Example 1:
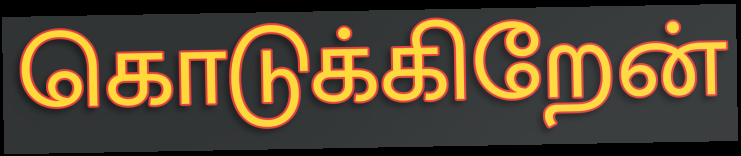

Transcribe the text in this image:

கொடுக்கிறேன்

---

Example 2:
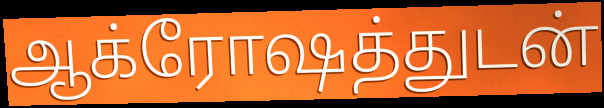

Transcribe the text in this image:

ஆக்ரோஷத்துடன்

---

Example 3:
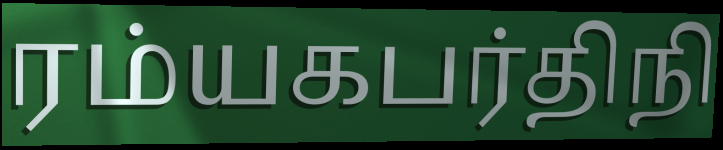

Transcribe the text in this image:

ரம்யகபர்திநி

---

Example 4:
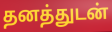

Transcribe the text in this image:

தனத்துடன்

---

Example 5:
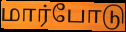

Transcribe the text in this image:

மார்போடு